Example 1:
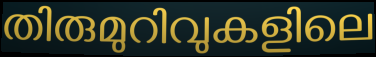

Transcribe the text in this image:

തിരുമുറിവുകളിലെ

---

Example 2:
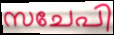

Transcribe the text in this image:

സചേപി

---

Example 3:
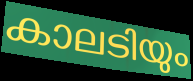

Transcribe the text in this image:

കാലടിയും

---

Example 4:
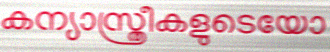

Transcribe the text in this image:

കന്യാസ്ത്രീകളുടെയോ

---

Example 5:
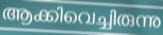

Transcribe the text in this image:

ആക്കിവെച്ചിരുന്നു